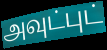
அவுட்புட்